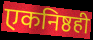
एकनिष्ठही